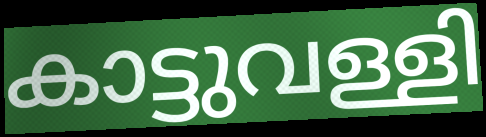
കാട്ടുവള്ളി